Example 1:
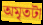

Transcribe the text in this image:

অমৃতটা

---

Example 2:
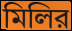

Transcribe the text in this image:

মিলির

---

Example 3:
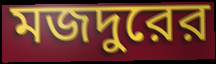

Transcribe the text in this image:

মজদুরের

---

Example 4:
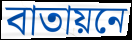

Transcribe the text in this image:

বাতায়নে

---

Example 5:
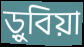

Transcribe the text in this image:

ড়ুবিয়া